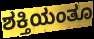
ಶಕ್ತಿಯಂತೂ